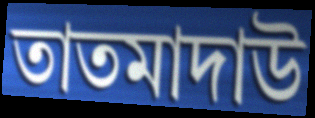
তাতমাদাউ